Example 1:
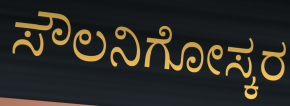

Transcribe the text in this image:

ಸೌಲನಿಗೋಸ್ಕರ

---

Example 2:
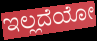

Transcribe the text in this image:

ಇಲ್ಲದೆಯೋ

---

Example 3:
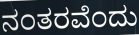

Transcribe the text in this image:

ನಂತರವೆಂದು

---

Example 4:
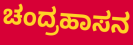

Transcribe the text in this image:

ಚಂದ್ರಹಾಸನ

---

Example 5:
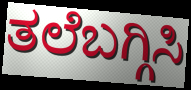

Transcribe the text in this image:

ತಲೆಬಗ್ಗಿಸಿ